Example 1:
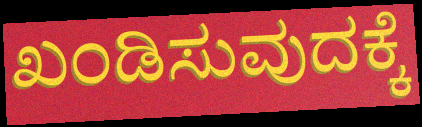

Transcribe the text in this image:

ಖಂಡಿಸುವುದಕ್ಕೆ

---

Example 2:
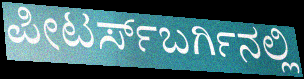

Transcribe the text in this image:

ಪೀಟರ್ಸ್‍ಬರ್ಗಿನಲ್ಲಿ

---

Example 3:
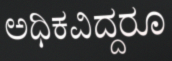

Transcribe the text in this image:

ಅಧಿಕವಿದ್ದರೂ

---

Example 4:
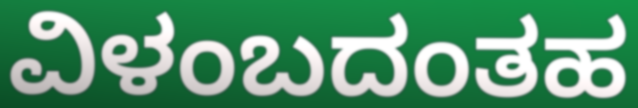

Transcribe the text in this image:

ವಿಳಂಬದಂತಹ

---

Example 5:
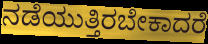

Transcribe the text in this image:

ನಡೆಯುತ್ತಿರಬೇಕಾದರೆ